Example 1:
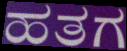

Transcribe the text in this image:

ಹತಗ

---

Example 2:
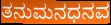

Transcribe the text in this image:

ತನುಮನಧನವ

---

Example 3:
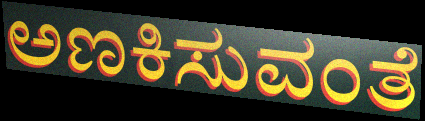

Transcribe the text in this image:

ಅಣಕಿಸುವಂತೆ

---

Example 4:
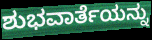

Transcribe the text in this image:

ಶುಭವಾರ್ತೆಯನ್ನು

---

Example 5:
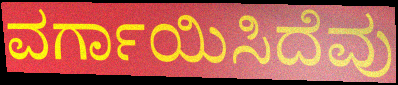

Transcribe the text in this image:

ವರ್ಗಾಯಿಸಿದೆವು